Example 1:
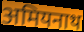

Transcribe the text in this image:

अमियनाथ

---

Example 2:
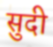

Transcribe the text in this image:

सुदी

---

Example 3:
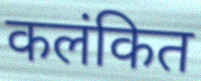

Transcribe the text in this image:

कलंकित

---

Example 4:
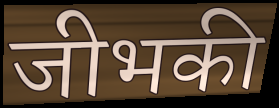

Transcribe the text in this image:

जीभकी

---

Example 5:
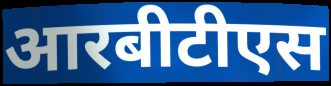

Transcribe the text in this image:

आरबीटीएस